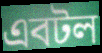
এবটল